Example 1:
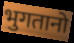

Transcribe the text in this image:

भुगतानो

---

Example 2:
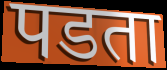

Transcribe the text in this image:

पडता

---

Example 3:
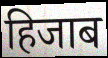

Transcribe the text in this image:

हिजाब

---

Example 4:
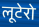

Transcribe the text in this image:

लूटेरो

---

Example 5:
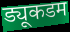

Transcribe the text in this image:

ड्यूकडम